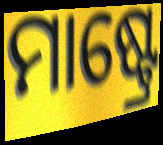
ମାଷ୍ଟ୍ରେ